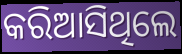
କରିଆସିଥିଲେ